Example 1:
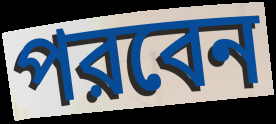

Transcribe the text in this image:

পরবেন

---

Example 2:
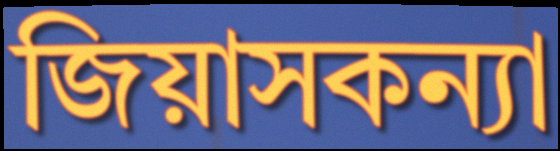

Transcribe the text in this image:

জিয়াসকন্যা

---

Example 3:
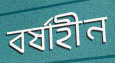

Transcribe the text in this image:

বর্ষাহীন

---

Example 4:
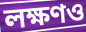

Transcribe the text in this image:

লক্ষণও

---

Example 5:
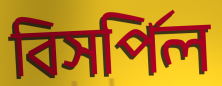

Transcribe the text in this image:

বিসর্পিল